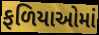
ફળિયાઓમાં